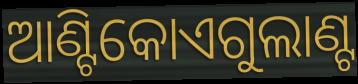
ଆଣ୍ଟିକୋଏଗୁଲାଣ୍ଟ